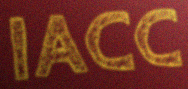
IACC